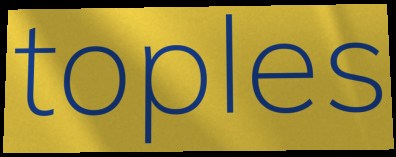
toples